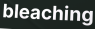
bleaching